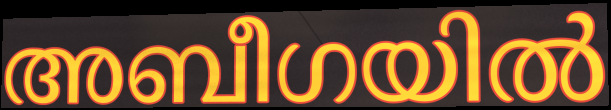
അബീഗയിൽ